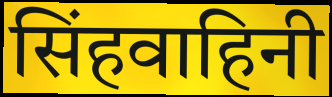
सिंहवाहिनी